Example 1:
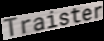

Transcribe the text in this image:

Traister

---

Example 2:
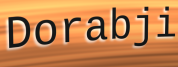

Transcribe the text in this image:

Dorabji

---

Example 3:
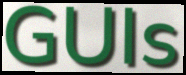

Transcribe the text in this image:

GUIs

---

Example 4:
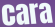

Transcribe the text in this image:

cara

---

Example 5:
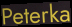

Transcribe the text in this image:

Peterka